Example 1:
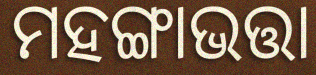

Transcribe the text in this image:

ମହଙ୍ଗାଭତ୍ତା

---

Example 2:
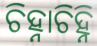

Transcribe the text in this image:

ଚିହ୍ନାଚିହ୍ନି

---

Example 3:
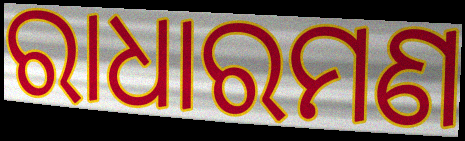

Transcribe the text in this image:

ରାଧାରମଣ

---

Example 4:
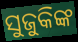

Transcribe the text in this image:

ସୁଜୁକିଙ୍କ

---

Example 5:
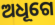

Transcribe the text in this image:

ଅଧୂଗେ